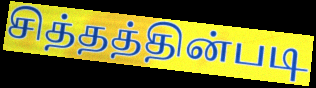
சித்தத்தின்படி